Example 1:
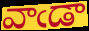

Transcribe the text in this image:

వాఁడా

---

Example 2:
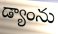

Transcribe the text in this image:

డ్యాంను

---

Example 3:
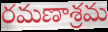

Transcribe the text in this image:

రమణాశ్రమ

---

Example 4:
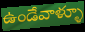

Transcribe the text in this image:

ఉండేవాళ్ళూ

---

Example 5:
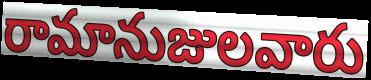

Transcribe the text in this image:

రామానుజులవారు